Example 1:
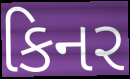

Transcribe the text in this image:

કિનર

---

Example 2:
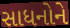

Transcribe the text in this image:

સાધનોને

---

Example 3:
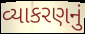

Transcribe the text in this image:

વ્યાકરણનું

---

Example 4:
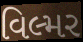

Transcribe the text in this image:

વિલ્મર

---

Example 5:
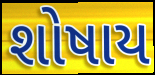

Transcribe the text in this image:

શોષાય